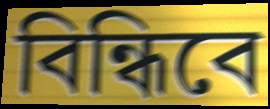
বিন্ধিবে